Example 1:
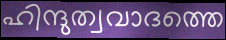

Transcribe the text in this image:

ഹിന്ദുത്വവാദത്തെ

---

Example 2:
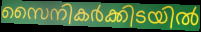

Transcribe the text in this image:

സൈനികർക്കിടയിൽ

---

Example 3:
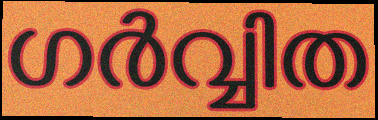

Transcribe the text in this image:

ഗർവ്വിത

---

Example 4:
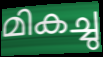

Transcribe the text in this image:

മികച്ചു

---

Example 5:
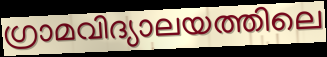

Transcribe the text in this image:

ഗ്രാമവിദ്യാലയത്തിലെ